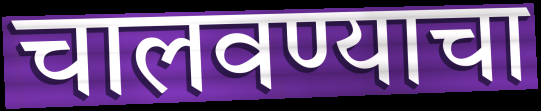
चालवण्याचा